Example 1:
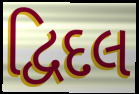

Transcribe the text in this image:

દ્વિદલ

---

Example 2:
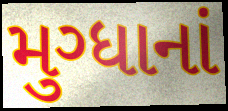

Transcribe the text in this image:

મુગ્ધાનાં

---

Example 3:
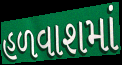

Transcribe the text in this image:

હળવાશમાં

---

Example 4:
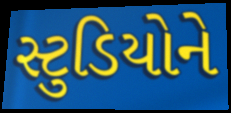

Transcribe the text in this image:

સ્ટુડિયોને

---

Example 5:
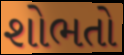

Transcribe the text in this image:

શોભતો